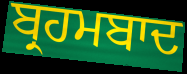
ਬ੍ਰਹਮਬਾਦ